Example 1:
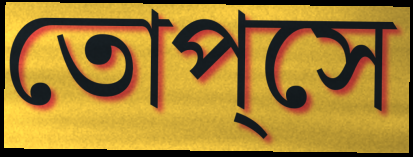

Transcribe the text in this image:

তোপ্‌সে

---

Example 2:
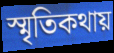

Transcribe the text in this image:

স্মৃতিকথায়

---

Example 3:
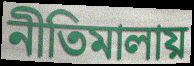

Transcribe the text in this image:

নীতিমালায়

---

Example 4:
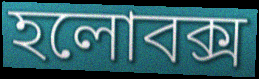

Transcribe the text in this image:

হলোবক্স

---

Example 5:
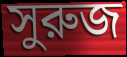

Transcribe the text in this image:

সুরুজ